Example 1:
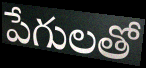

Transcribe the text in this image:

పేగులతో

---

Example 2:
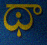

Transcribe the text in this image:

థా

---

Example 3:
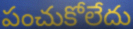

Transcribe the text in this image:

పంచుకోలేదు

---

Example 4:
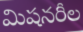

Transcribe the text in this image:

మిషనరీల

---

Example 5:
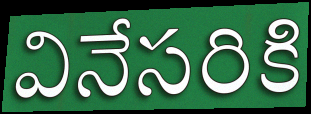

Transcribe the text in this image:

వినేసరికి